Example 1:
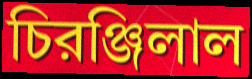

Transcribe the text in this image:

চিরঞ্জিলাল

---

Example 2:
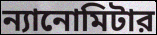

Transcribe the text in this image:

ন্যানোমিটার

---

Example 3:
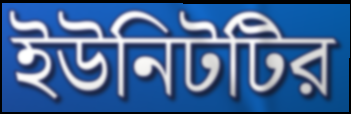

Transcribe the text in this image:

ইউনিটটির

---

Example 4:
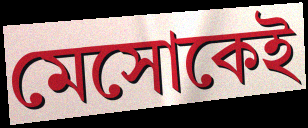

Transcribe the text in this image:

মেসোকেই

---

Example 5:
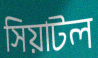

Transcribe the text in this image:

সিয়াটল